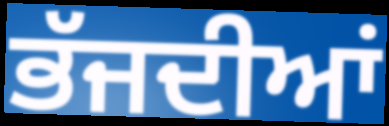
ਭੱਜਦੀਆਂ